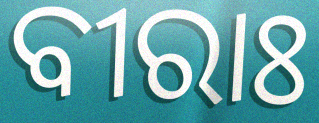
ବୀରାଃ